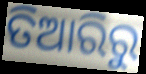
ତିଆରିରୁ